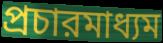
প্রচারমাধ্যম